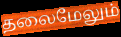
தலைமேலும்